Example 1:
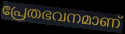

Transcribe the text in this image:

പ്രേതഭവനമാണ്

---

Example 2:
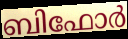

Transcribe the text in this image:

ബിഫോർ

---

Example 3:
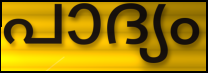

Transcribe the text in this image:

പാദ്യം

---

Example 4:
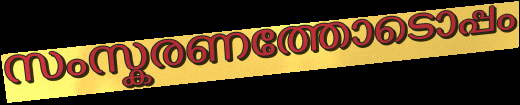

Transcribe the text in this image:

സംസ്കരണത്തോടൊപ്പം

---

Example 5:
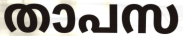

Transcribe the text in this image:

താപസ